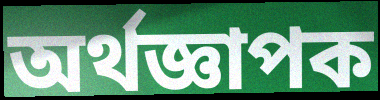
অর্থজ্ঞাপক